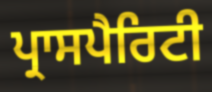
ਪ੍ਰਾਸਪੈਰਿਟੀ